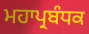
ਮਹਾਪ੍ਰਬੰਧਕ